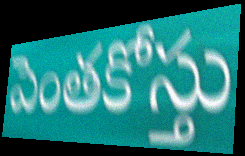
పెంతకోస్తు